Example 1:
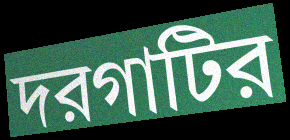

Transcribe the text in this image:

দরগাটির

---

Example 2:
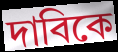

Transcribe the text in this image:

দাবিকে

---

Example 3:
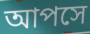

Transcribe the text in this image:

আপসে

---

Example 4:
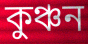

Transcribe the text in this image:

কুঞ্চন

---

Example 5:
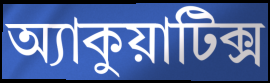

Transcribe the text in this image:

অ্যাকুয়াটিক্স